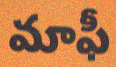
మాఫీ